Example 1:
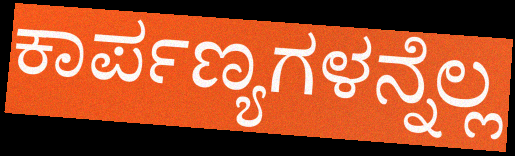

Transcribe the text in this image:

ಕಾರ್ಪಣ್ಯಗಳನ್ನೆಲ್ಲ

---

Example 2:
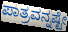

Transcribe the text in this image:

ಪಾತ್ರವನ್ನಷ್ಟೇ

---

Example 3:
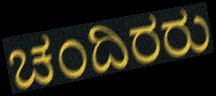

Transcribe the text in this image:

ಚಂದಿರರು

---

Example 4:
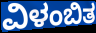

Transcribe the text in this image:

ವಿಳಂಬಿತ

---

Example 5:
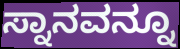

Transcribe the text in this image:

ಸ್ನಾನವನ್ನೂ